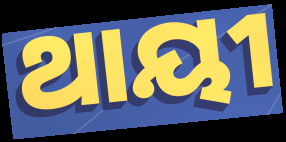
ଥାୟୀ